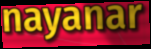
nayanar